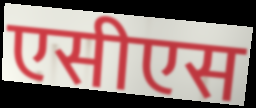
एसीएस